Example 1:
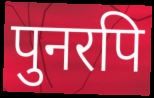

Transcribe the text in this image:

पुनरपि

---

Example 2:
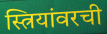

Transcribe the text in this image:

स्त्रियांवरची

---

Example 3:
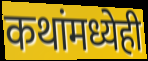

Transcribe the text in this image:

कथांमध्येही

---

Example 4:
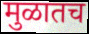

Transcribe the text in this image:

मुळातच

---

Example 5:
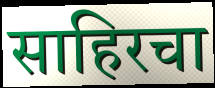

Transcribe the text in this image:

साहिरचा